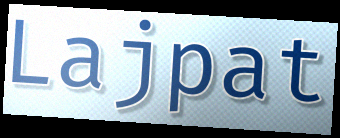
Lajpat